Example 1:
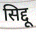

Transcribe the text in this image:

सिद्दू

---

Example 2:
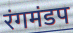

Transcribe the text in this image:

रंगमंडप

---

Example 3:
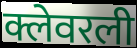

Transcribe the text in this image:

क्लेवरली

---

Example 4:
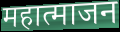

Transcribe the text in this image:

महात्माजन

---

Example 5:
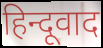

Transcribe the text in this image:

हिन्दूवाद